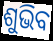
ଶୁଭିବ